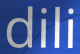
dili